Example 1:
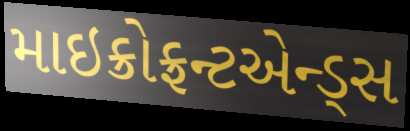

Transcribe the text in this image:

માઇક્રોફ્રન્ટએન્ડ્સ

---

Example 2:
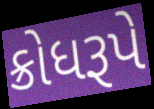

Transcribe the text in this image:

ક્રોધરૂપે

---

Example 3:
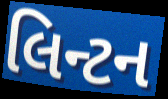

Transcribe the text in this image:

લિન્ટન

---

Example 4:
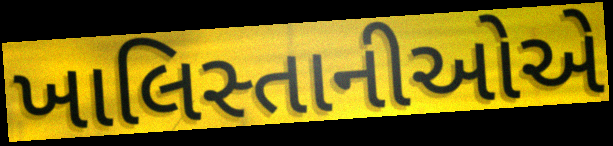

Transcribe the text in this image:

ખાલિસ્તાનીઓએ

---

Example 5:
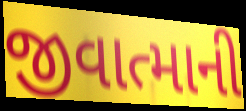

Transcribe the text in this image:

જીવાત્માની